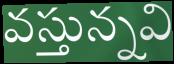
వస్తున్నవి